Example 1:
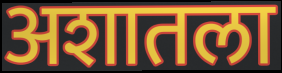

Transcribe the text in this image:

अशातला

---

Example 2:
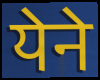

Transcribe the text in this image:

येने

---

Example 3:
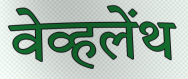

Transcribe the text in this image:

वेव्हलेंथ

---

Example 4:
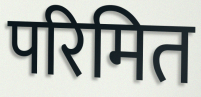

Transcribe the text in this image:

परिमित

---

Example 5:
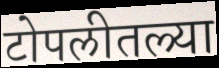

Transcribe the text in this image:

टोपलीतल्या